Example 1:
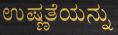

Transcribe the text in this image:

ಉಷ್ಣತೆಯನ್ನು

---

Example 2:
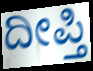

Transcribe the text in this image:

ದೀಪ್ತಿ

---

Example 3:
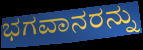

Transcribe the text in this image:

ಭಗವಾನರನ್ನು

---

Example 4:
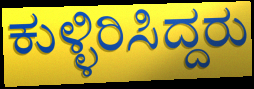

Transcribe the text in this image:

ಕುಳ್ಳಿರಿಸಿದ್ದರು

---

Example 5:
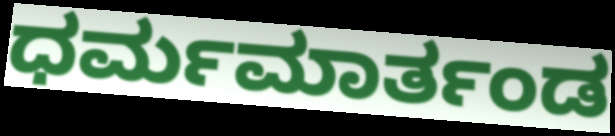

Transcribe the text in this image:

ಧರ್ಮಮಾರ್ತಂಡ